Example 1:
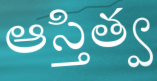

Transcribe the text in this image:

ఆస్తిత్వ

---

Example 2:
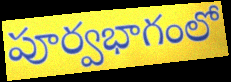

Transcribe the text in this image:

పూర్వభాగంలో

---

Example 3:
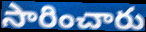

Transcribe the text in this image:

సారించారు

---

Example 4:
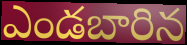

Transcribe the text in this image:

ఎండబారిన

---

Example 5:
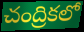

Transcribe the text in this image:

చంద్రికలో